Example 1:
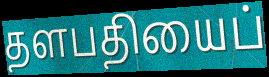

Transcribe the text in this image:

தளபதியைப்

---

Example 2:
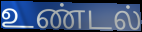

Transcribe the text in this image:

உண்டல்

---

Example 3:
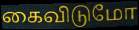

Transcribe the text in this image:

கைவிடுமோ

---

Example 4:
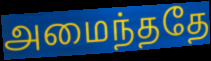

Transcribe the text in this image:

அமைந்ததே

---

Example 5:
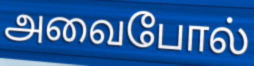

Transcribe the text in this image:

அவைபோல்